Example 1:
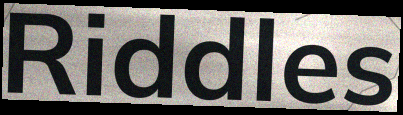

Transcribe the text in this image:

Riddles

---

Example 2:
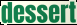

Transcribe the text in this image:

dessert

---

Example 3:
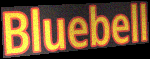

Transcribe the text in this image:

Bluebell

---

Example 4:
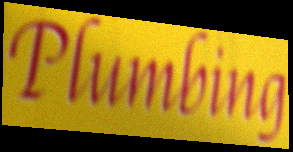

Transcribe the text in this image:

Plumbing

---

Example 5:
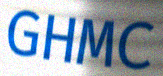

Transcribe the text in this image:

GHMC